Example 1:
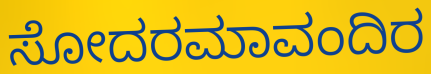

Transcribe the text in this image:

ಸೋದರಮಾವಂದಿರ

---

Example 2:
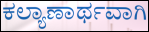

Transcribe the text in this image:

ಕಲ್ಯಾಣಾರ್ಥವಾಗಿ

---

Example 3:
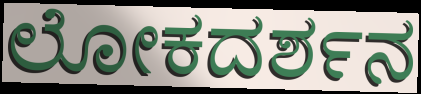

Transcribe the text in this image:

ಲೋಕದರ್ಶನ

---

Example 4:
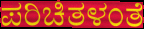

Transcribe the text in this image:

ಪರಿಚಿತಳಂತೆ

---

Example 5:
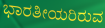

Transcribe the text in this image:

ಭಾರತೀಯರಿರುವ